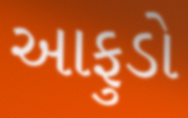
આફુડો